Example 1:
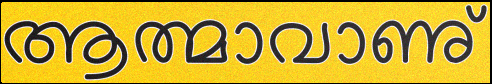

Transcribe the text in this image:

ആത്മാവാണു്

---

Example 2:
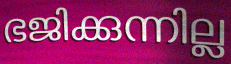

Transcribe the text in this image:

ഭജിക്കുന്നില്ല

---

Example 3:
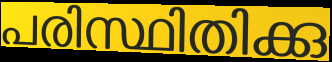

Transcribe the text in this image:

പരിസ്ഥിതിക്കു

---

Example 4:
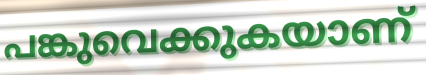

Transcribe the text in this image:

പങ്കുവെക്കുകയാണ്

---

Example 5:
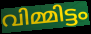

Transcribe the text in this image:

വിമ്മിട്ടം